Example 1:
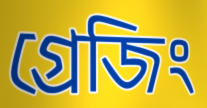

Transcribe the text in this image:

গ্রেজিং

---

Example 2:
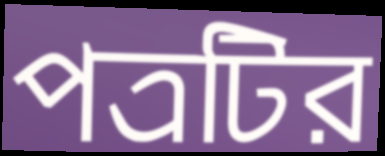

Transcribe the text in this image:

পত্রটির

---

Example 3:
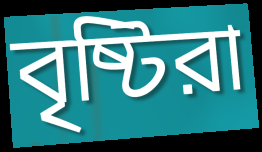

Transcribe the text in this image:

বৃষ্টিরা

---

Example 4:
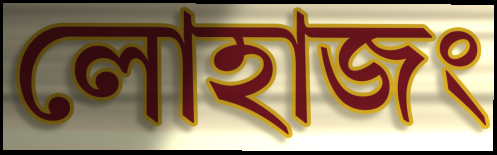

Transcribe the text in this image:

লোহাজং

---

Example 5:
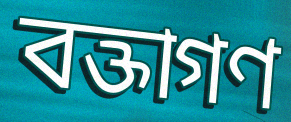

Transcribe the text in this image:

বক্তাগণ